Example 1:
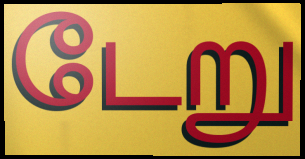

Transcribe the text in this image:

டேறு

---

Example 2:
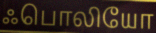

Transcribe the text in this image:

ஃபொலியோ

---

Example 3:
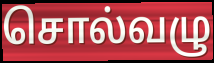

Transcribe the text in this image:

சொல்வழு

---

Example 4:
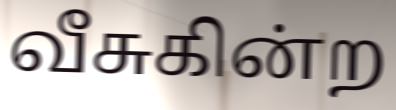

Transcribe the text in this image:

வீசுகின்ற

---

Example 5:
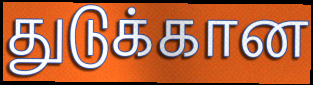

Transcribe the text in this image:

துடுக்கான